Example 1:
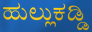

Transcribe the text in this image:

ಹುಲ್ಲುಕಡ್ಡಿ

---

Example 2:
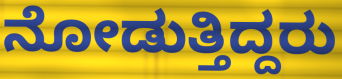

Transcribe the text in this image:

ನೋಡುತ್ತಿದ್ದರು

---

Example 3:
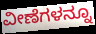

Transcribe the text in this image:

ವೀಣೆಗಳನ್ನೂ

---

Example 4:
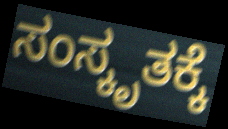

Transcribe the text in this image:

ಸಂಸ್ಕೃತಕ್ಕೆ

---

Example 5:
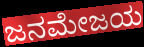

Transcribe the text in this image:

ಜನಮೇಜಯ